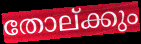
തോല്ക്കും